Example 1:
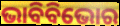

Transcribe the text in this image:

ଭାବିବିଭୋର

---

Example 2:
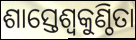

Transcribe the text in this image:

ଶାସ୍ତେଶ୍ବକୁଣ୍ଠିତା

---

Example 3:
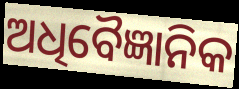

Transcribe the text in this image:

ଅଧିବୈଜ୍ଞାନିକ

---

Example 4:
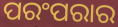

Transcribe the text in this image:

ପରଂପରାର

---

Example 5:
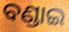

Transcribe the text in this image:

ବଣ୍ଡାଇ